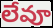
లేవూ